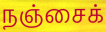
நஞ்சைக்